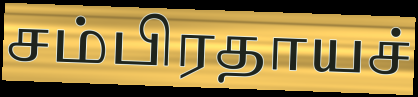
சம்பிரதாயச்